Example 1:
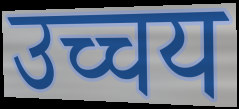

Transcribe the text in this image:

उच्चय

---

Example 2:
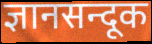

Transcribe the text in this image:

ज्ञानसन्दूक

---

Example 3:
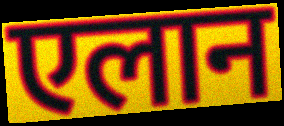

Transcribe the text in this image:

एलान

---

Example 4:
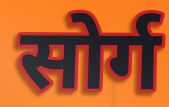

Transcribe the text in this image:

सोर्ग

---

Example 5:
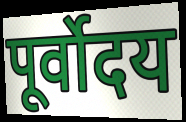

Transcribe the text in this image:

पूर्वोदय